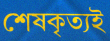
শেষকৃত্যই